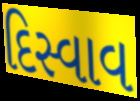
દિસ્વાવ